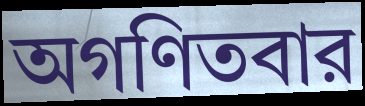
অগণিতবার